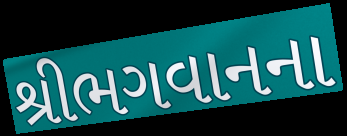
શ્રીભગવાનના